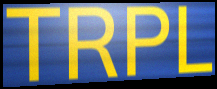
TRPL